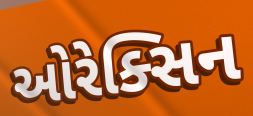
ઓરેક્સિન